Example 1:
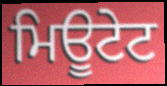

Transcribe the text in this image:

ਮਿਊਟੇਟ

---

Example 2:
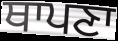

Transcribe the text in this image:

ਥਾਪਣਾ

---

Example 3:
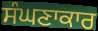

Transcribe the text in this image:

ਸੰਘਣਾਕਾਰ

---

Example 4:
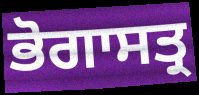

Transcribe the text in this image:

ਭੋਗਾਸਤ੍ਰ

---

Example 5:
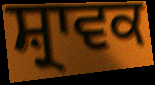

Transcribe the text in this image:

ਸ਼੍ਰਾਵਕ